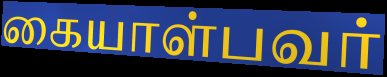
கையாள்பவர்